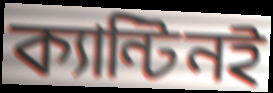
ক্যান্টিনই